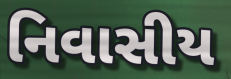
નિવાસીય